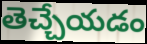
తెచ్చేయడం